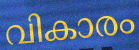
വികാരം